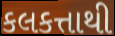
કલકત્તાથી